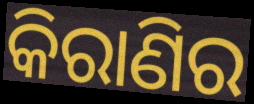
କିରାଣିର